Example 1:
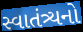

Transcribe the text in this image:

સ્વાતંત્ર્યનો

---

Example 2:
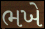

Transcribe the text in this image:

ભખે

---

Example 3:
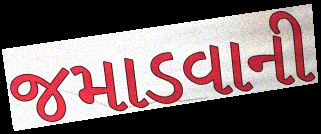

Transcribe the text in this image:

જમાડવાની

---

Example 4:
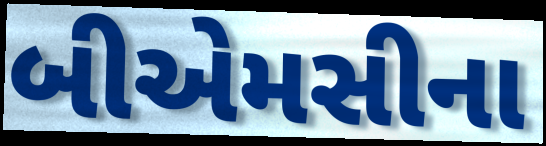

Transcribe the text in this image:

બીએમસીના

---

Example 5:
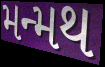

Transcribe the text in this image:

મન્મથ